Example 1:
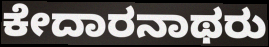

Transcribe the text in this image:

ಕೇದಾರನಾಥರು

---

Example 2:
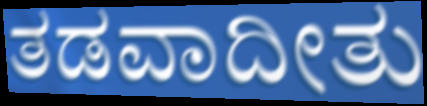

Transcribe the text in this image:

ತಡವಾದೀತು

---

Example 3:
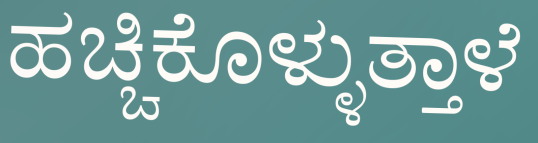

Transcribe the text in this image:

ಹಚ್ಚಿಕೊಳ್ಳುತ್ತಾಳೆ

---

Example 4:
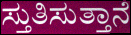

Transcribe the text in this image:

ಸ್ತುತಿಸುತ್ತಾನೆ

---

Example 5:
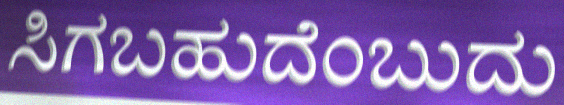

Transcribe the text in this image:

ಸಿಗಬಹುದೆಂಬುದು